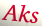
Aks